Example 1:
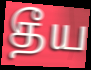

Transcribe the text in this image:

தீய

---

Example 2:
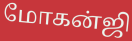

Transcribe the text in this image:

மோகன்ஜி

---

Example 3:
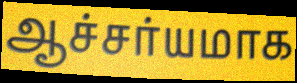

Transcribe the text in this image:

ஆச்சர்யமாக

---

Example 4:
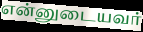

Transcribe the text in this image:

என்னுடையவர்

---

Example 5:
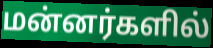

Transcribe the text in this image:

மன்னர்களில்